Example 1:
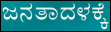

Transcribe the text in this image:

ಜನತಾದಳಕ್ಕೆ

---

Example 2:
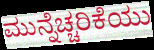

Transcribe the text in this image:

ಮುನ್ನೆಚ್ಚರಿಕೆಯು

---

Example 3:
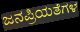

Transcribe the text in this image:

ಜನಪ್ರಿಯತೆಗಳ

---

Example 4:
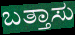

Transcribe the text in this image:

ಬತ್ತಾಸು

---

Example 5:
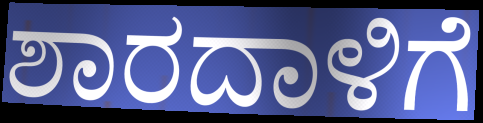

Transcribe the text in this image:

ಶಾರದಾಳಿಗೆ